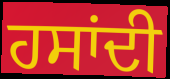
ਹਸਾਂਦੀ